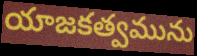
యాజకత్వమును